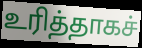
உரித்தாகச்